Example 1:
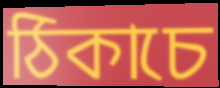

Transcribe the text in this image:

ঠিকাচে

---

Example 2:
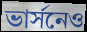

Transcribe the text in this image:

ভার্সনেও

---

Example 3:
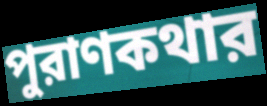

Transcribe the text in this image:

পুরাণকথার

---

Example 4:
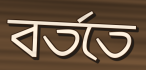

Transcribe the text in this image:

বর্ততে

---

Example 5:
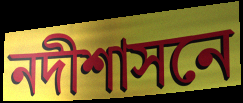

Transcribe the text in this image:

নদীশাসনে